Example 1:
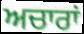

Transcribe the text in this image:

ਅਚਾਰਾਂ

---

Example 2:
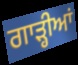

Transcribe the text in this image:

ਗਾੜ੍ਹੀਆਂ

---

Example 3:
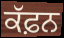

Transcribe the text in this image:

ਕੱਫ਼ਨ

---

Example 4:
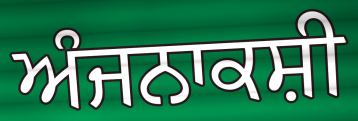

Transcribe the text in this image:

ਅੰਜਨਾਕਸ਼ੀ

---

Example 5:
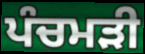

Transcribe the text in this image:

ਪੰਚਮੜੀ